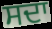
ਸਦਾ